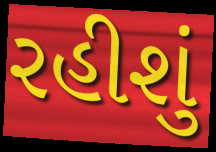
રહીશું